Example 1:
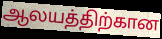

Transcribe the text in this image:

ஆலயத்திற்கான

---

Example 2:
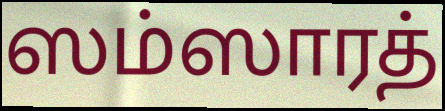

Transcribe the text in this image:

ஸம்ஸாரத்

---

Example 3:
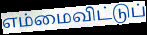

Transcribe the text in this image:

எம்மைவிட்டுப்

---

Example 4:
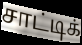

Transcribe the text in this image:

சாட்டிக்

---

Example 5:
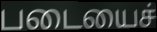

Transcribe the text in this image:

படையைச்